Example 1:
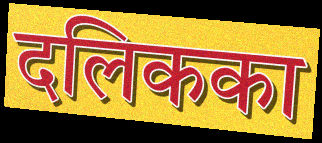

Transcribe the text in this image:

दलिकका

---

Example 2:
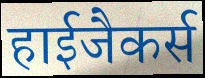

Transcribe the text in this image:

हाईजैकर्स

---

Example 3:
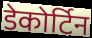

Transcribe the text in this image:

डेकोर्टिन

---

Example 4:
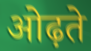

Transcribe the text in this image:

ओढ़ते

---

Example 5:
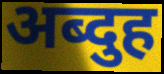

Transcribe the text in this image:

अब्दुह